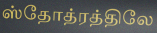
ஸ்தோத்ரத்திலே